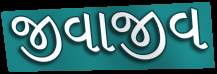
જીવાજીવ